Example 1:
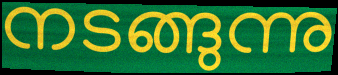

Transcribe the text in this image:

നടങ്ങുന്നു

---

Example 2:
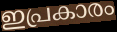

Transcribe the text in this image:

ഇപ്രകാരം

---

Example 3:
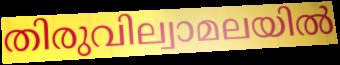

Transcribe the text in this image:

തിരുവില്വാമലയിൽ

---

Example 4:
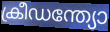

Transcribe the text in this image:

ക്രീഡന്ത്യോ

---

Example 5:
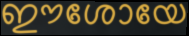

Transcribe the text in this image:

ഈശോയേ